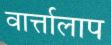
वार्त्तालाप